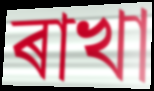
ৰাখা